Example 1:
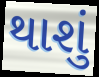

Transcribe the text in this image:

થાશું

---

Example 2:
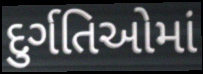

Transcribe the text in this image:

દુર્ગતિઓમાં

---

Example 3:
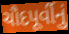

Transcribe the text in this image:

ચૌદપૂર્વીનું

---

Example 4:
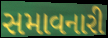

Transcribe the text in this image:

સમાવનારી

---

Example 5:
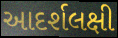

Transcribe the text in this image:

આદર્શલક્ષી